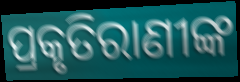
ପ୍ରକୃତିରାଣୀଙ୍କ